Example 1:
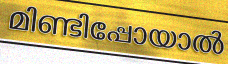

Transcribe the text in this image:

മിണ്ടിപ്പോയാൽ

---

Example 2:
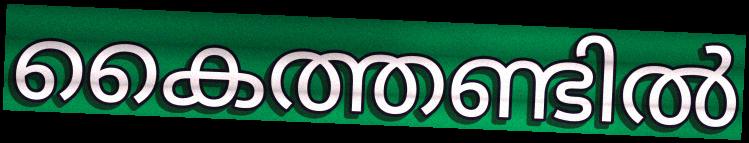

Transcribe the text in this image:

കൈത്തണ്ടിൽ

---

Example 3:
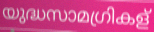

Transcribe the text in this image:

യുദ്ധസാമഗ്രികള്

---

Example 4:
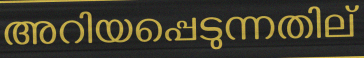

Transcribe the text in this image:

അറിയപ്പെടുന്നതില്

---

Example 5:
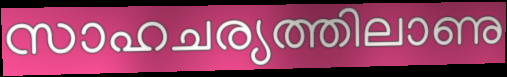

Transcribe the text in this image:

സാഹചര്യത്തിലാണു